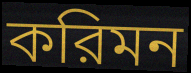
করিমন